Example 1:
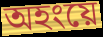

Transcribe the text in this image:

অহংয়ে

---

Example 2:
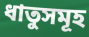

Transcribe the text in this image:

ধাতুসমূহ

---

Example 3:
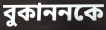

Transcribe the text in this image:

বুকাননকে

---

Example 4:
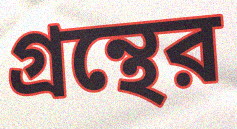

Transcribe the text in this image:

গ্রন্থের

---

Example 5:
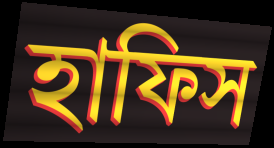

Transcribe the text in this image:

হাফিস